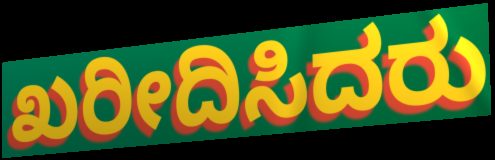
ಖರೀದಿಸಿದರು